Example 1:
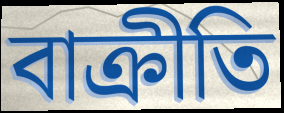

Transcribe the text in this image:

বাক্রীতি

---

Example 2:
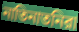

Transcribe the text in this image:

নাতিনাতনিরা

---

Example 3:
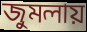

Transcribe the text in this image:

জুমলায়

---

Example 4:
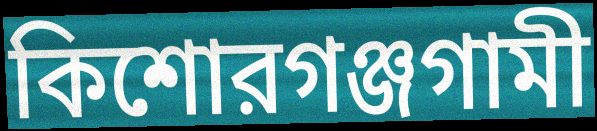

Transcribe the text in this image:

কিশোরগঞ্জগামী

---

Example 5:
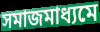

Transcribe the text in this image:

সমাজমাধ্যমে